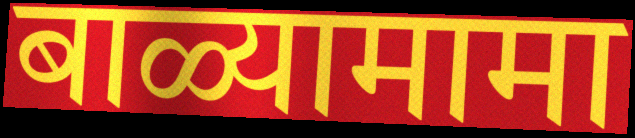
बाळ्यामामा